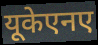
यूकेएनए